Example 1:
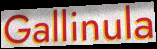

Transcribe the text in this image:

Gallinula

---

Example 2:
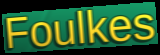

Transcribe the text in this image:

Foulkes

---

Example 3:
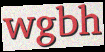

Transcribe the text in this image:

wgbh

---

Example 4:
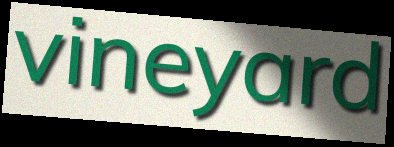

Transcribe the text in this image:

vineyard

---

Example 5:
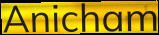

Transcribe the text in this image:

Anicham